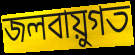
জলবায়ুগত